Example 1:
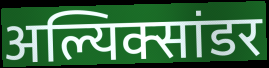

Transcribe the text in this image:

अल्यिक्सांडर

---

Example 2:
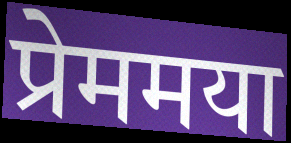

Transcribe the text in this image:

प्रेममया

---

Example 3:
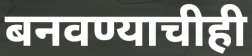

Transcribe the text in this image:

बनवण्याचीही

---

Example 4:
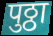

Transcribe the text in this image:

पुठ्ठा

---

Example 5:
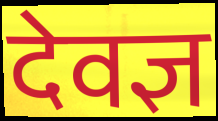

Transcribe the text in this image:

देवज्ञ